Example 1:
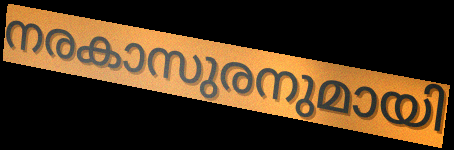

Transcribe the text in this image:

നരകാസുരനുമായി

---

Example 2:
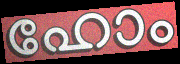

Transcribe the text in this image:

ഹോം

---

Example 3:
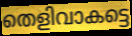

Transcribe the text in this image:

തെളിവാകട്ടെ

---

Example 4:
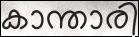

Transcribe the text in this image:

കാന്താരി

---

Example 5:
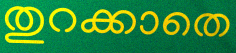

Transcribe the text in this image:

തുറക്കാതെ